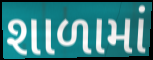
શાળામાં